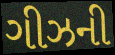
ગીઝની